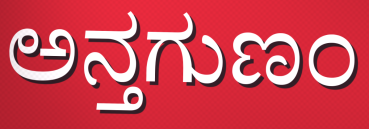
ಅನ್ತಗುಣಂ